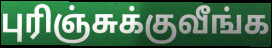
புரிஞ்சுக்குவீங்க